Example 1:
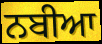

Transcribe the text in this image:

ਨਬੀਆ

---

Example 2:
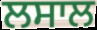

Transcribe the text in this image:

ਲਸਾਲ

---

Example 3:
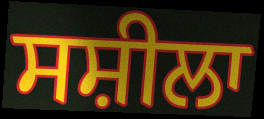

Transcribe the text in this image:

ਸਸ਼ੀਲਾ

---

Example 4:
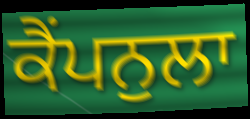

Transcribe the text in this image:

ਕੈਂਪਨੁਲਾ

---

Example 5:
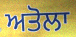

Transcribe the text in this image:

ਅਤੋਲਾ